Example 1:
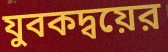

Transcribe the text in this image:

যুবকদ্বয়ের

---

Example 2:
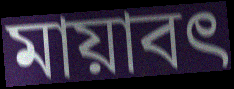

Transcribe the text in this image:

মায়াবৎ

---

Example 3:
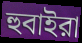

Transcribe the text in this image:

হুবাইরা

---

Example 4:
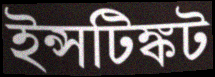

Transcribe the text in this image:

ইন্সটিঙ্কট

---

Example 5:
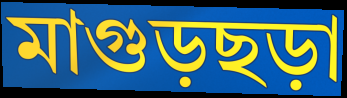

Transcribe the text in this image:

মাগুড়ছড়া